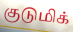
குடுமிக்